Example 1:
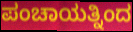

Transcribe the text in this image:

ಪಂಚಾಯತ್ನಿಂದ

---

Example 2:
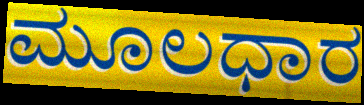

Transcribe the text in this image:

ಮೂಲಧಾರ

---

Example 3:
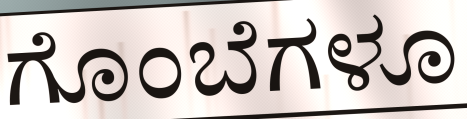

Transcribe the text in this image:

ಗೊಂಬೆಗಳೂ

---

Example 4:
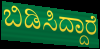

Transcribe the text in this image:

ಬಿಡಿಸಿದ್ದಾರೆ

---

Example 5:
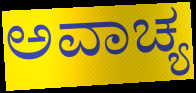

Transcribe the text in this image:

ಅವಾಚ್ಯ